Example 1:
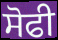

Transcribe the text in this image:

ਸੋਫੀ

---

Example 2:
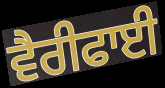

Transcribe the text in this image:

ਵੈਰੀਫਾਈ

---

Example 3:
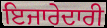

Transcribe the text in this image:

ਇਜਾਰੇਦਾਰੀ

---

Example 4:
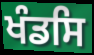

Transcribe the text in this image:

ਖੰਡਸਿ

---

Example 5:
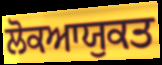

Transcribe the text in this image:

ਲੋਕਆਯੁਕਤ